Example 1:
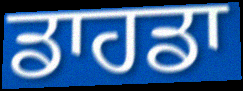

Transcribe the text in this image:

ਡਾਹਡਾ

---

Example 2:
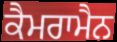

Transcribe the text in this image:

ਕੈਮਰਾਮੈਨ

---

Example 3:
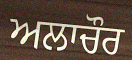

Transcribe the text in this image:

ਅਲਾਚੌਰ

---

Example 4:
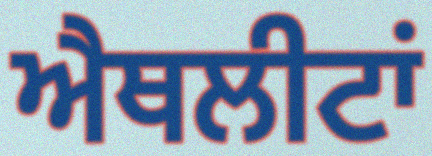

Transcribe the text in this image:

ਐਥਲੀਟਾਂ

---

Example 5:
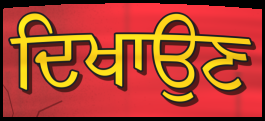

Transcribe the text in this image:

ਦਿਖਾਉਣ